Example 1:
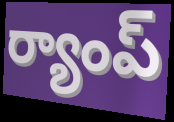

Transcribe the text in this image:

ర్యాంప్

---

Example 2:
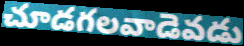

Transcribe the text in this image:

చూడగలవాడెవడు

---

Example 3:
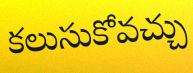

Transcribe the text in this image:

కలుసుకోవచ్చు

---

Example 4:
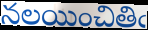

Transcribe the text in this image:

నలయించితిఁ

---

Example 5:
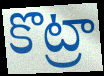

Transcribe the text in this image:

కొట్రా